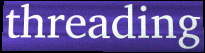
threading